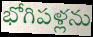
భోగిపళ్లను